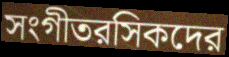
সংগীতরসিকদের